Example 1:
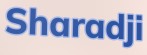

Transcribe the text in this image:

Sharadji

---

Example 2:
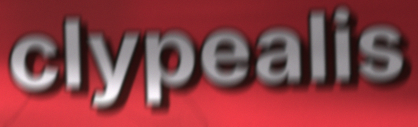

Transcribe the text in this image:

clypealis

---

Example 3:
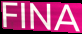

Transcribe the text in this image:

FINA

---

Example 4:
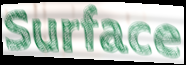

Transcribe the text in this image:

Surface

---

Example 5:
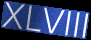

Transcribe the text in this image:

XLVIII